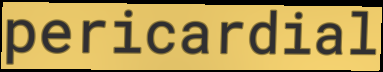
pericardial